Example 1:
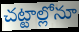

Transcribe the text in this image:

చట్టాల్లోనూ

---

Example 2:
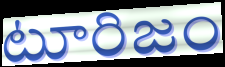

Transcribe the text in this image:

టూరిజం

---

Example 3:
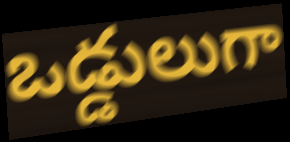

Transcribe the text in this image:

ఒడ్డులుగా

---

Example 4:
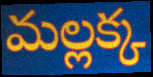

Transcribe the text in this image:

మల్లక్క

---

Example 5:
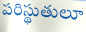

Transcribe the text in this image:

పరిస్థుతులూ